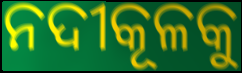
ନଦୀକୂଳକୁ